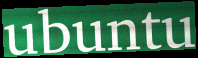
ubuntu